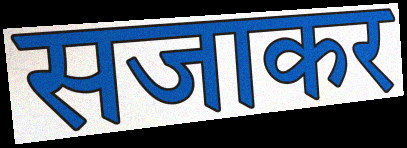
सजाकर